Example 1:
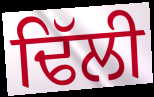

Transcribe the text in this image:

ਢਿੱਲੀ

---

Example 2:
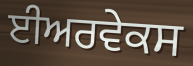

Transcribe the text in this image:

ਈਅਰਵੇਕਸ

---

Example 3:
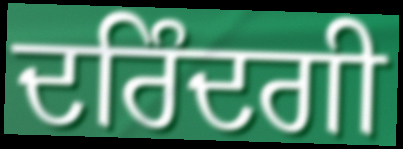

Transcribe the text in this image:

ਦਰਿੰਦਗੀ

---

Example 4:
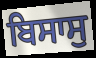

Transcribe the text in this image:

ਬਿਸਾਸੁ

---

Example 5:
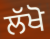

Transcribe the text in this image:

ਲੱਖੋ